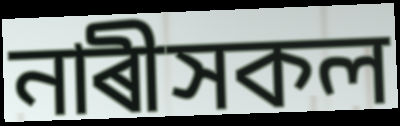
নাৰীসকল